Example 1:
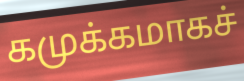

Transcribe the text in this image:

கமுக்கமாகச்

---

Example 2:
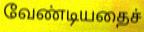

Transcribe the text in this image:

வேண்டியதைச்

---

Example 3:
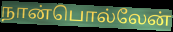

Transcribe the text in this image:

நான்பொல்லேன்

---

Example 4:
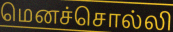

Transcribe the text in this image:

மெனச்சொல்லி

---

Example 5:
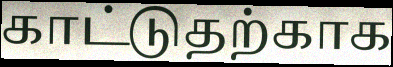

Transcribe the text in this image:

காட்டுதற்காக